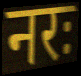
नरः